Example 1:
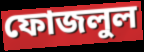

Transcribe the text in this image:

ফোজলুল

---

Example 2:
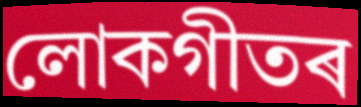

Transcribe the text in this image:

লোকগীতৰ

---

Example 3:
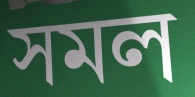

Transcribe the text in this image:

সমল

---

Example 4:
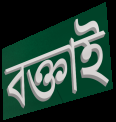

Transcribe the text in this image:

বক্তাই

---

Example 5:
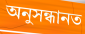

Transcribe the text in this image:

অনুসন্ধানত